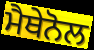
ਮੈਥੇਨੋਲ